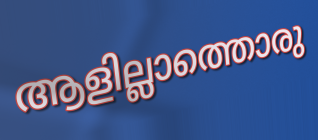
ആളില്ലാത്തൊരു